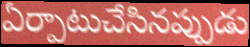
ఏర్పాటుచేసినప్పుడు